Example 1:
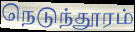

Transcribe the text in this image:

நெடுந்தூரம்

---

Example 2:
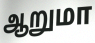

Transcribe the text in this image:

ஆறுமா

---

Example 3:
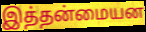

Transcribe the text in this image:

இத்தன்மையன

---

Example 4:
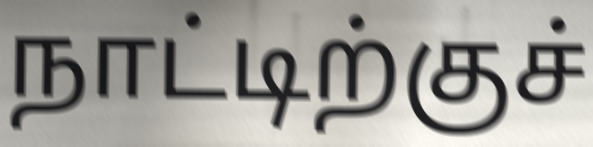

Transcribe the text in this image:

நாட்டிற்குச்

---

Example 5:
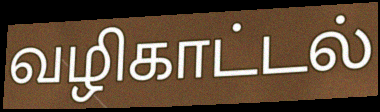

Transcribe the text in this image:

வழிகாட்டல்